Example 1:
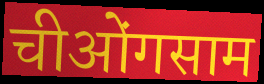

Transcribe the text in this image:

चीओंगसाम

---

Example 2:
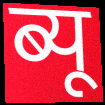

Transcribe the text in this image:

ब्यू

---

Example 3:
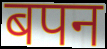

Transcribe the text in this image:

बपन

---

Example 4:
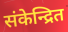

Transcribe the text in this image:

संकेन्द्रित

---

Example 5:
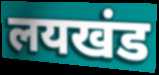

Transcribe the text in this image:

लयखंड